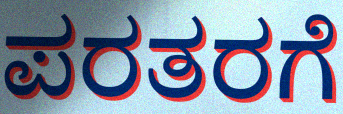
ಪರತರಗೆ